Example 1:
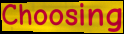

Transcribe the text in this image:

Choosing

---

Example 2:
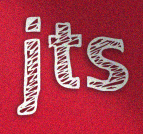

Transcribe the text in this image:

jts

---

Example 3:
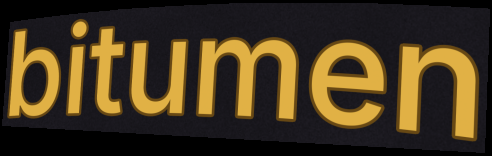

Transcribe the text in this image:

bitumen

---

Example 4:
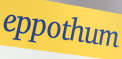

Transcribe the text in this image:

eppothum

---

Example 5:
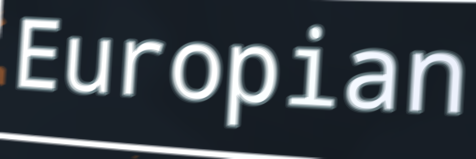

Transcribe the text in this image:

Europian